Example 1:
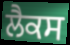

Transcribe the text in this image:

ਲੈਕਸ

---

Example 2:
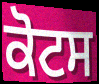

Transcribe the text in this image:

ਕੋਟਸ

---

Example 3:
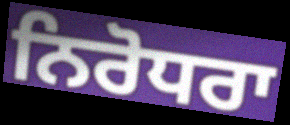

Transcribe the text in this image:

ਨਿਰੋਧਰਾ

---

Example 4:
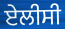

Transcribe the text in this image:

ਏਲੀਸੀ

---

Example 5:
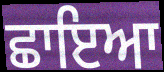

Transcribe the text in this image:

ਛਾਇਆ